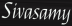
Sivasamy